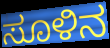
ಸೂಳಿನ